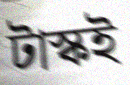
টাস্কই